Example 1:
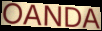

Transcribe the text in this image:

OANDA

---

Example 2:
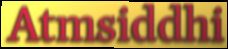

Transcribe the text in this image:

Atmsiddhi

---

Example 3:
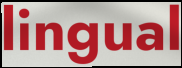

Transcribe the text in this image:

lingual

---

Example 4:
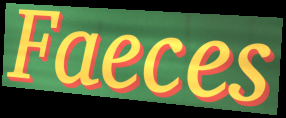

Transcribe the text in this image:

Faeces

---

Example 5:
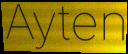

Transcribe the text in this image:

Ayten